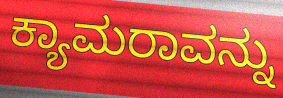
ಕ್ಯಾಮರಾವನ್ನು